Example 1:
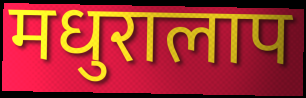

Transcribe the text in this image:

मधुरालाप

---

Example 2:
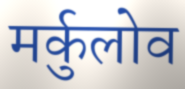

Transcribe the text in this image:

मर्कुलोव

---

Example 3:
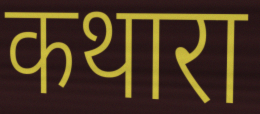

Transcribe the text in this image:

कथारा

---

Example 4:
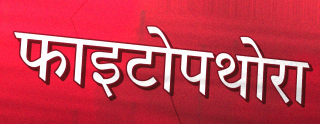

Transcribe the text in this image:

फाइटोपथोरा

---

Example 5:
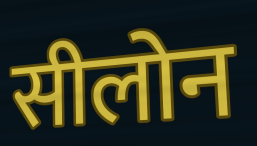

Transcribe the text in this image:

सीलोन